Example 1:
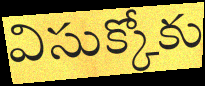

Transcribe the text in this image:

విసుక్కోకు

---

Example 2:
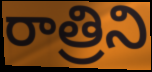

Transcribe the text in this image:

రాత్రిని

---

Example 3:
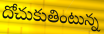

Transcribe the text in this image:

దోచుకుతింటున్న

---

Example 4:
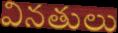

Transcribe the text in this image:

వినతులు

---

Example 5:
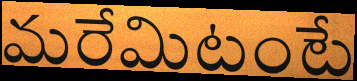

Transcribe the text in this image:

మరేమిటంటే